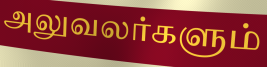
அலுவலர்களும்